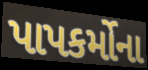
પાપકર્મોના